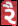
રૈ